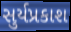
સુર્યપ્રકાશ